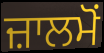
ਜ਼ਾਲਮੋਂ